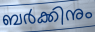
ബർക്കിനും